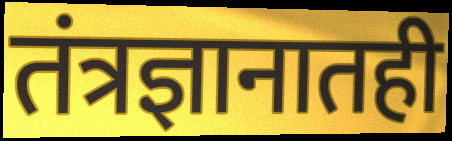
तंत्रज्ञानातही